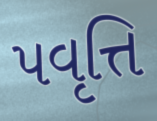
પવૃત્તિ